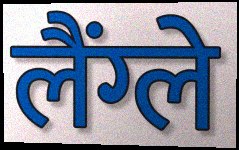
लैंग्ले